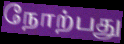
நோற்பது